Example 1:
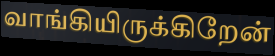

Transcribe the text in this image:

வாங்கியிருக்கிறேன்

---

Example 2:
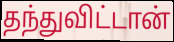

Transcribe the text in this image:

தந்துவிட்டான்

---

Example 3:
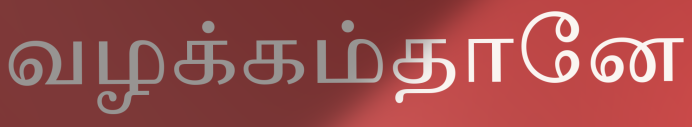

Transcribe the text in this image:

வழக்கம்தானே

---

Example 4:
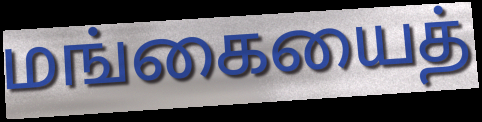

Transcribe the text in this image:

மங்கையைத்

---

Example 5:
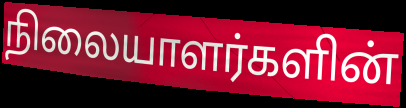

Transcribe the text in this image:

நிலையாளர்களின்